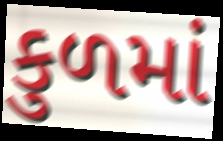
કુળમાં